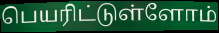
பெயரிட்டுள்ளோம்